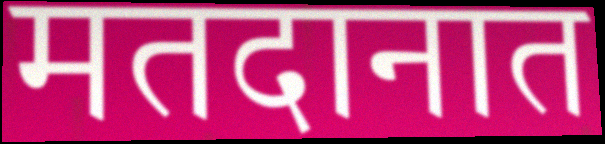
मतदानात